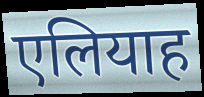
एलियाह